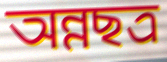
অন্নছত্র